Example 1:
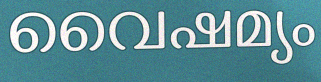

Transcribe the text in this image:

വൈഷമ്യം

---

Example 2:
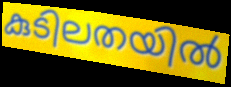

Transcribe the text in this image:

കുടിലതയിൽ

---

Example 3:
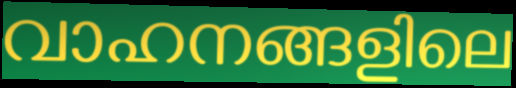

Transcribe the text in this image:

വാഹനങ്ങളിലെ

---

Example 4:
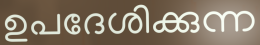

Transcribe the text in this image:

ഉപദേശിക്കുന്ന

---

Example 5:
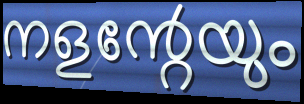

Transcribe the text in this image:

നളന്റേയും